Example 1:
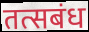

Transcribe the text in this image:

तत्सबंध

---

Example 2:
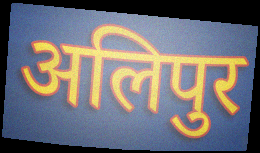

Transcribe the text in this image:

अलिपुर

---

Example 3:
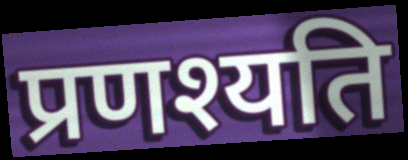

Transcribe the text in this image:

प्रणश्यति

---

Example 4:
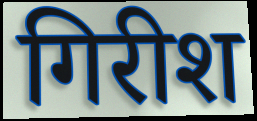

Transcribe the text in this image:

गिरीश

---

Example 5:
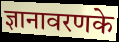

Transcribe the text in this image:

ज्ञानावरणके